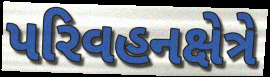
પરિવહનક્ષેત્રે